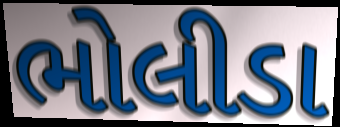
ભોલીડા